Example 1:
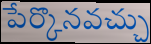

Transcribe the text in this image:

పేర్కొనవచ్చు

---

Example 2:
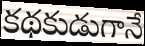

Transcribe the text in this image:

కథకుడుగానే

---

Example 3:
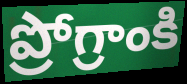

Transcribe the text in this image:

ప్రోగ్రాంకి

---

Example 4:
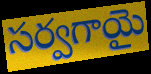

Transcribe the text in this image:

సర్వగాయై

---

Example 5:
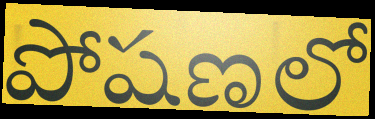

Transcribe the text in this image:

పోషణలో